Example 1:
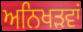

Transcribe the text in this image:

ਅਨਿਖੜਵਾਂ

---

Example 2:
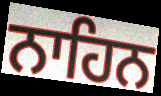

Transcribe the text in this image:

ਨਾਹਿਨ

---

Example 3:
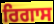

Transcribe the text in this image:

ਰਿਗਾਸ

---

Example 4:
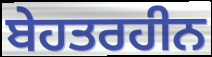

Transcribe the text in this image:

ਬੇਹਤਰਹੀਨ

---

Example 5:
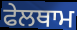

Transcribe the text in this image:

ਫੇਲਥਾਮ